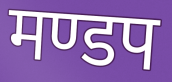
मण्‍डप